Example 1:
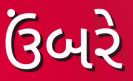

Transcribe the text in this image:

ઉંબરે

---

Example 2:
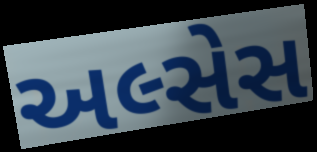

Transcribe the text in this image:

અલ્સેસ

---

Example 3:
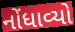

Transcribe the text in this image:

નોંધાવ્યો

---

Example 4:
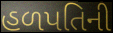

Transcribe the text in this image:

હળપતિની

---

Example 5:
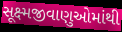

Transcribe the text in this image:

સૂક્ષ્મજીવાણુઓમાંથી